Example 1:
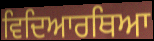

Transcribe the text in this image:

ਵਿਦਿਆਰਥਿਆ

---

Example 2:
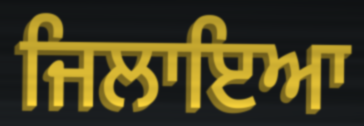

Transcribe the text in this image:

ਜਿਲਾਇਆ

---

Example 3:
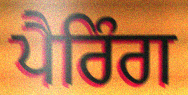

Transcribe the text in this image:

ਪੈਰਿੰਗ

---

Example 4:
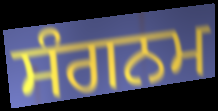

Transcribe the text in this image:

ਸੰਗਨਮ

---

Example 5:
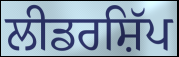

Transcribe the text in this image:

ਲੀਡਰਸ਼ਿੱਪ